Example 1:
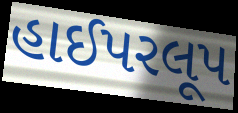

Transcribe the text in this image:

હાઈપરલૂપ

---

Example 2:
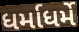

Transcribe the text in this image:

ધર્માધર્મે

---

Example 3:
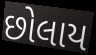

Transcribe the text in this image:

છોલાય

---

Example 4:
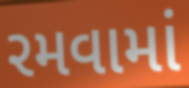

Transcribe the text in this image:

રમવામાં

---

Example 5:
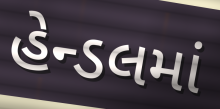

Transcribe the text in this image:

હેન્ડલમાં